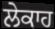
ਲੇਕਾਹ